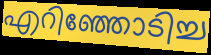
എറിഞ്ഞോടിച്ച